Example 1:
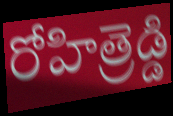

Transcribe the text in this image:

రోహిత్రెడ్డి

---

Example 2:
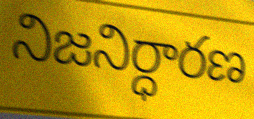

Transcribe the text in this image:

నిజనిర్ధారణ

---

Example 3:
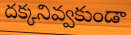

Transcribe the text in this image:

దక్కనివ్వకుండా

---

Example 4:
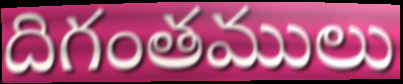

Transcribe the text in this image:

దిగంతములు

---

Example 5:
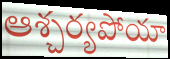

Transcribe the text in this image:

ఆశ్చర్యపోయా